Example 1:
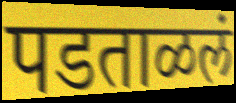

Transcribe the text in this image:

पडताळलं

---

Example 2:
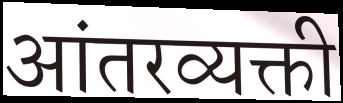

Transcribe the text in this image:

आंतरव्यक्ती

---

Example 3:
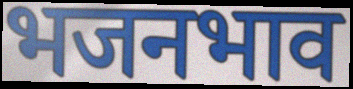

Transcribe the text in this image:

भजनभाव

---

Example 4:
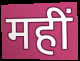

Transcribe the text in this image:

महीं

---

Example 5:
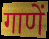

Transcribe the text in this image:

गाणें